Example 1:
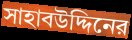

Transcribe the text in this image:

সাহাবউদ্দিনের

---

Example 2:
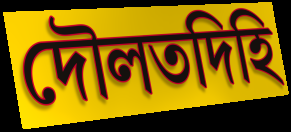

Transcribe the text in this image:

দৌলতদিহি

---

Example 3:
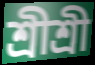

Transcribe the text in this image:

শ্রীশ্রী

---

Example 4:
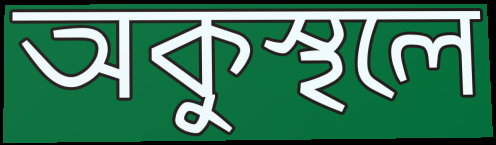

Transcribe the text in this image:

অকুস্থলে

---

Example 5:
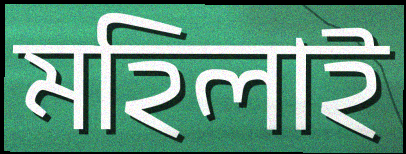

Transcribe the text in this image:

মহিলাই